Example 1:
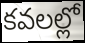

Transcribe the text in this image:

కవలల్లో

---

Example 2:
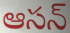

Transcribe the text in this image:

ఆసన్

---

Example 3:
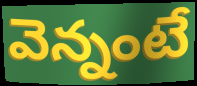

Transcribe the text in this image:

వెన్నంటే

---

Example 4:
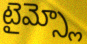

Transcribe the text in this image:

టైమ్స్లో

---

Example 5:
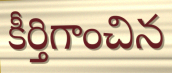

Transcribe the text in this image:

కీర్తిగాంచిన